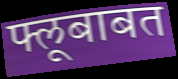
फ्लूबाबत